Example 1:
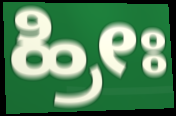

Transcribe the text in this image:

ಹ್ರೀಃ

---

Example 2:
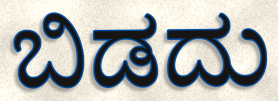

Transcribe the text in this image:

ಬಿಡದು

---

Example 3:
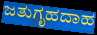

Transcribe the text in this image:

ಜತುಗೃಹದಾಹ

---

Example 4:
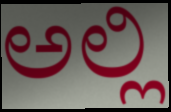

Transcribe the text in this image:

ಅಲ್ಲಿ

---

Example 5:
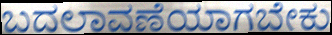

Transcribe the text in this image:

ಬದಲಾವಣೆಯಾಗಬೇಕು